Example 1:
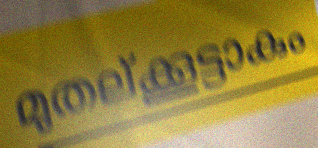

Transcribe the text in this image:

മുതല്ക്കൂട്ടാകും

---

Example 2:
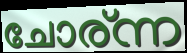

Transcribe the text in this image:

ചോര്ന്ന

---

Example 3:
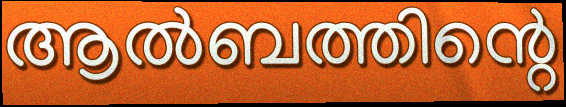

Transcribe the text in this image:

ആൽബത്തിന്റെ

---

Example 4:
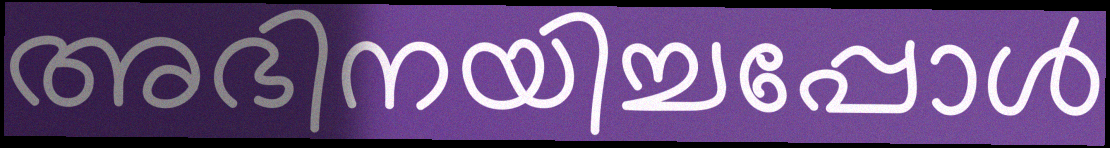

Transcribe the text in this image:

അഭിനയിച്ചപ്പോൾ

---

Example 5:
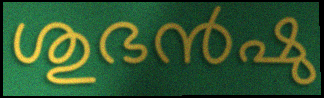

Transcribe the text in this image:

ശുഭൻഷു